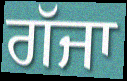
ਗੱਜਾ